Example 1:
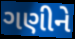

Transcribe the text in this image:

ગણીને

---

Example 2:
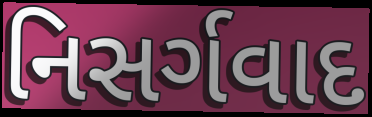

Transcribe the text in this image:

નિસર્ગવાદ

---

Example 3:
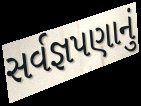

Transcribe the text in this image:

સર્વજ્ઞપણાનું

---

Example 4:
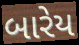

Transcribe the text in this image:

બારેય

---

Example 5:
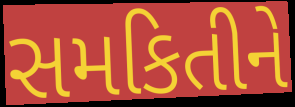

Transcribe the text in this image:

સમકિતીને